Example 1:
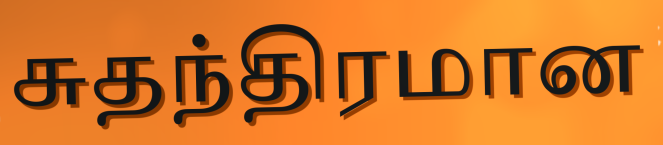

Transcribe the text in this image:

சுதந்திரமான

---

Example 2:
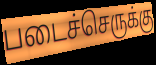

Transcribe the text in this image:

படைச்செருக்கு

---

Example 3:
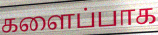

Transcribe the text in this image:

களைப்பாக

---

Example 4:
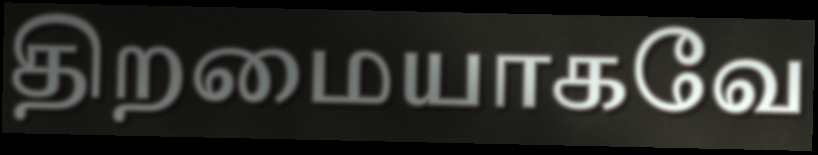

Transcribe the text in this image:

திறமையாகவே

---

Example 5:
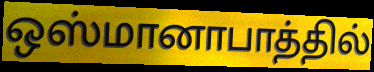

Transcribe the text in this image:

ஒஸ்மானாபாத்தில்